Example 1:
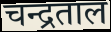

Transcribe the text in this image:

चन्द्रताल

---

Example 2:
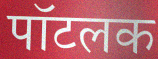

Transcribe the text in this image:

पॉटलक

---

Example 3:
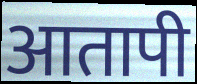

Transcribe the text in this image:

आतापी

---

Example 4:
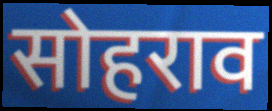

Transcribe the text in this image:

सोहराव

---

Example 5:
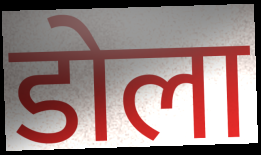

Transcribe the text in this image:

डोला